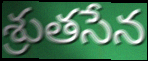
శ్రుతసేన